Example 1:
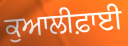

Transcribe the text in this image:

ਕੁਆਲੀਫ਼ਾਈ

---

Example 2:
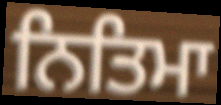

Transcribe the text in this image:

ਨਿਤਿਮਾ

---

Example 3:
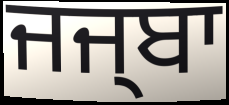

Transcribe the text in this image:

ਜਜ੍ਬਾ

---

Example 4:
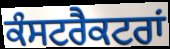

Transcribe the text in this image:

ਕੰਸਟਰੈਕਟਰਾਂ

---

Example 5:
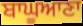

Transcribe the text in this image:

ਬਾਘੂਆਣਾ